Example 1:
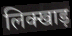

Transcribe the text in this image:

लिक्खाड़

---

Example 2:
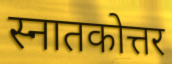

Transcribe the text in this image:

स्नातकोत्तर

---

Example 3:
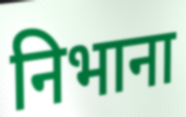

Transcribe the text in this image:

निभाना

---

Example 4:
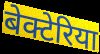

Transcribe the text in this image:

बेक्टेरिया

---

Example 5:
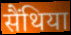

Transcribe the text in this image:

सैंथिया